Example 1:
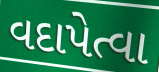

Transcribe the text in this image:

વદાપેત્વા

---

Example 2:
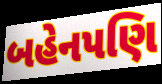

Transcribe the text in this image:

બહેનપણિ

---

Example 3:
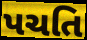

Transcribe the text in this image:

પચતિ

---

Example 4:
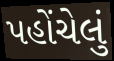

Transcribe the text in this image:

પહોંચેલું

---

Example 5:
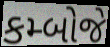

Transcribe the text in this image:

કમ્બોજે